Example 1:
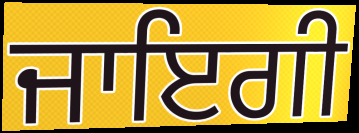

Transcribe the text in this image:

ਜਾਇਗੀ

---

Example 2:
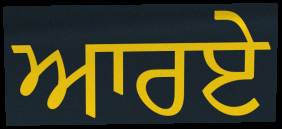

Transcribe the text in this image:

ਆਰਏ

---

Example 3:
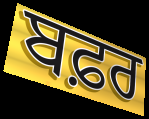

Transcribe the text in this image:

ਬਫ਼ਰ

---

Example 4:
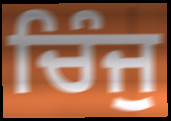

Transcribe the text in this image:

ਚਿੰਜੁ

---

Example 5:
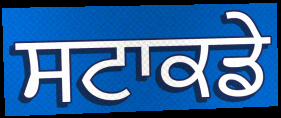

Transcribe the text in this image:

ਸਟਾਕਡੇ